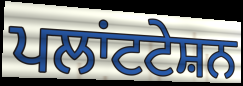
ਪਲਾਂਟਟੇਸ਼ਨ